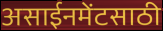
असाईनमेंटसाठी